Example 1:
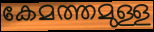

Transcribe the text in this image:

കേമത്തമുള്ള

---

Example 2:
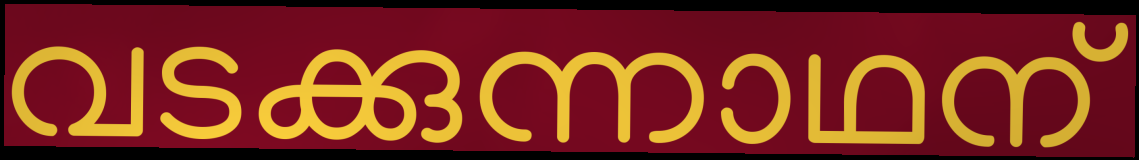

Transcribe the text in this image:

വടക്കുന്നാഥന്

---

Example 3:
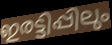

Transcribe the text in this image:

ഇരട്ടിപ്പിലും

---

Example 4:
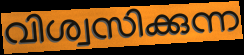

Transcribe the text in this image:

വിശ്വസിക്കുന്ന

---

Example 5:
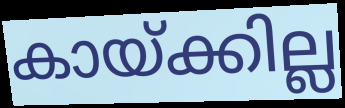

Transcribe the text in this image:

കായ്ക്കില്ല